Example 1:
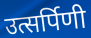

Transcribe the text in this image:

उत्सर्पिणी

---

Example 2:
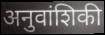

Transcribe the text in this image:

अनुवांशिकी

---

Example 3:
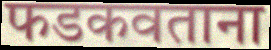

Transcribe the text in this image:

फडकवताना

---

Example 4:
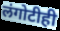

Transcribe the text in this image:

लंगोटीही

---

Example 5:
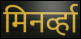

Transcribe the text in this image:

मिनर्व्हा